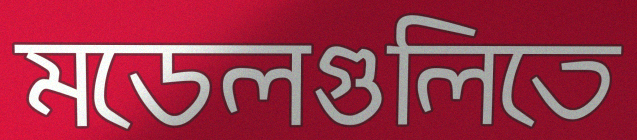
মডেলগুলিতে